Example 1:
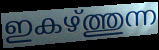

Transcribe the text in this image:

ഇകഴ്ത്തുന്ന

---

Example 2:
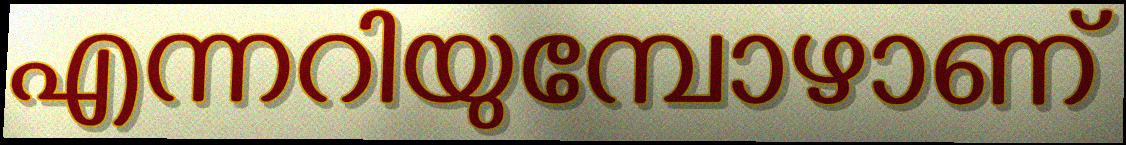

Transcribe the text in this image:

എന്നറിയുമ്പോഴാണ്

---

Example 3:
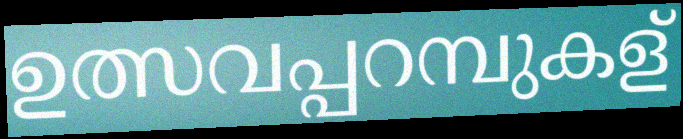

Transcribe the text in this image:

ഉത്സവപ്പറമ്പുകള്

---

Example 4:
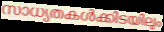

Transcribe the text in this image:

സാധ്യതകൾക്കിടയിലും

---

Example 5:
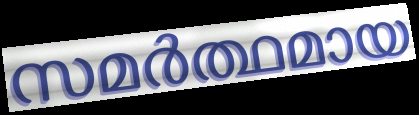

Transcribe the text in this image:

സമർത്ഥമായ